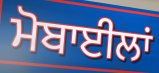
ਮੋਬਾਈਲਾਂ